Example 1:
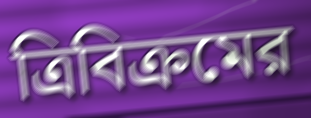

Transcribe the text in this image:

ত্রিবিক্রমের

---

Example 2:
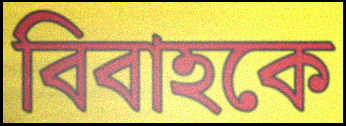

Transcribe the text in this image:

বিবাহকে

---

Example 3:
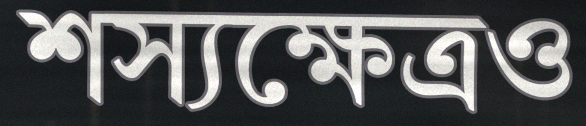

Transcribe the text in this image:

শস্যক্ষেত্রও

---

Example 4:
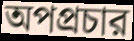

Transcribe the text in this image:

অপপ্রচার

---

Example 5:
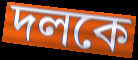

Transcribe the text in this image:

দলকে